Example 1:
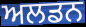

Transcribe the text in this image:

ਅਲਡਨ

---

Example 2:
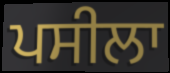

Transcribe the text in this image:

ਪਸੀਲਾ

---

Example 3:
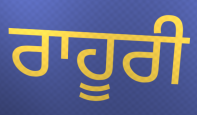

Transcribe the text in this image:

ਰਾਹੂਰੀ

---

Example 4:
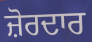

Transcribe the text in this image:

ਜ਼ੋਰਦਾਰ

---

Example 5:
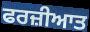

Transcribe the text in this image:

ਫਰਜ਼ੀਆਤ